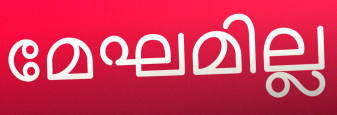
മേഘമില്ല